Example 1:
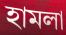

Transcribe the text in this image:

হামলা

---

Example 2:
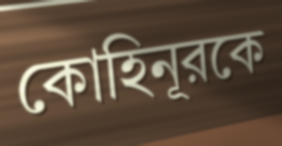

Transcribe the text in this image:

কোহিনূরকে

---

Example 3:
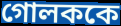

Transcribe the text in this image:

গোলককে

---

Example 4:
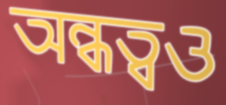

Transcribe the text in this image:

অন্ধত্বও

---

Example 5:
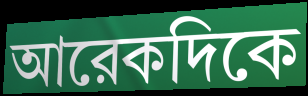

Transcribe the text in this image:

আরেকদিকে